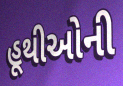
હૂથીઓની